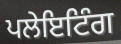
ਪਲੇਇਟਿੰਗ